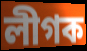
লীগক